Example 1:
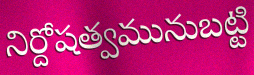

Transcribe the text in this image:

నిర్దోషత్వమునుబట్టి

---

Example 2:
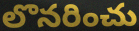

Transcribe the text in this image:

లొనరించు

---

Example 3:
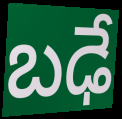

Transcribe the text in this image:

బఢే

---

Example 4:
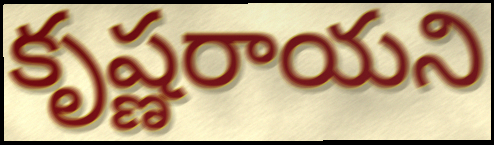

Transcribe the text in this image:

కృష్ణరాయని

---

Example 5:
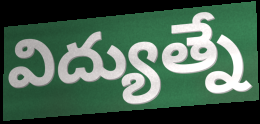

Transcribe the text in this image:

విద్యుత్నే